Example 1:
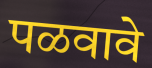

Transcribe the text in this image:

पळवावे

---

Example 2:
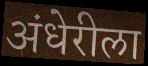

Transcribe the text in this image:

अंधेरीला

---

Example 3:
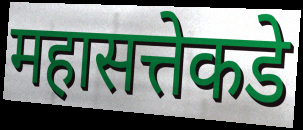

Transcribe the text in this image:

महासत्तेकडे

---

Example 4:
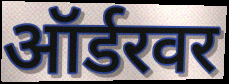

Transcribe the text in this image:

ऑर्डरवर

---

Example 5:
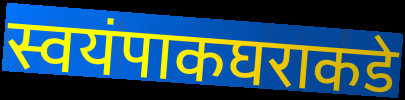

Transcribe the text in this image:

स्वयंपाकघराकडे